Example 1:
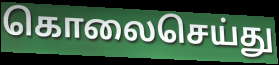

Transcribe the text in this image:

கொலைசெய்து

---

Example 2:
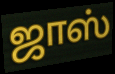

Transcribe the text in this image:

ஜாஸ்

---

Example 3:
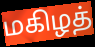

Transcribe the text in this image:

மகிழத்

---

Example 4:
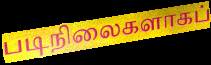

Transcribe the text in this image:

படிநிலைகளாகப்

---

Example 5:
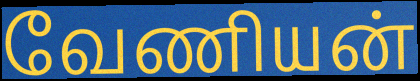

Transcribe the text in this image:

வேணியன்